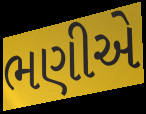
ભણીએ